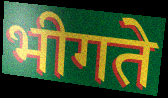
भीगते